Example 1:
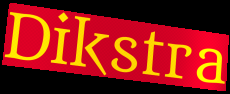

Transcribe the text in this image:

Dikstra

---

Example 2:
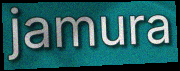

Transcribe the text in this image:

jamura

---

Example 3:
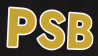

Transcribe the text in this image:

PSB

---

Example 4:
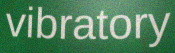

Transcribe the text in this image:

vibratory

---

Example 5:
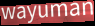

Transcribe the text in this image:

wayuman